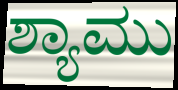
ಶ್ಯಾಮು